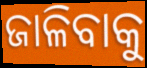
ଜାଳିବାକୁ